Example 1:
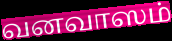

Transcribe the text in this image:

வனவாஸம்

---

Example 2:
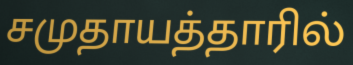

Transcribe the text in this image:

சமுதாயத்தாரில்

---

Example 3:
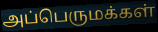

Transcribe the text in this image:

அப்பெருமக்கள்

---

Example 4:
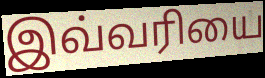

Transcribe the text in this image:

இவ்வரியை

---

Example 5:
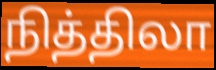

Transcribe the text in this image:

நித்திலா